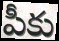
పీకు